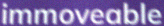
immoveable